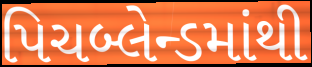
પિચબ્લેન્ડમાંથી